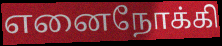
எனைநோக்கி